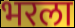
भरला